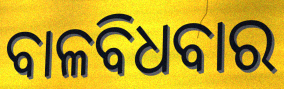
ବାଳବିଧବାର